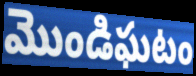
మొండిఘటం